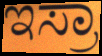
ಇಸ್ರಾ